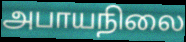
அபாயநிலை